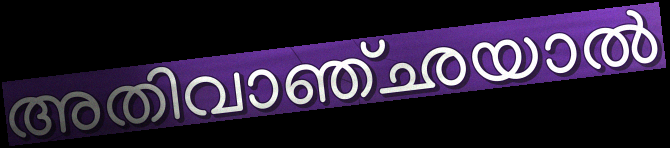
അതിവാഞ്ഛയാൽ